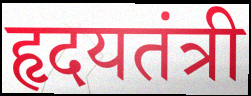
हृदयतंत्री